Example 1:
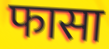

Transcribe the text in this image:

फासा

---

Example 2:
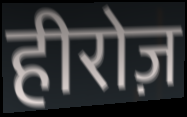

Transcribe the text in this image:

हीरोज़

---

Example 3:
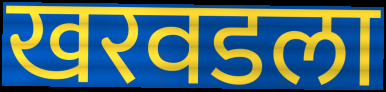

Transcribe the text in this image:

खरवडला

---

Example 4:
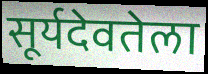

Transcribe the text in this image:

सूर्यदेवतेला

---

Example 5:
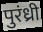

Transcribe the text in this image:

पुरंध्री